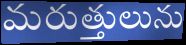
మరుత్తులును